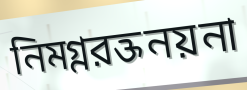
নিমগ্নরক্তনয়না